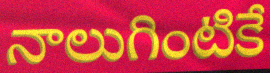
నాలుగింటికే